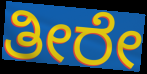
ತೀರೇ